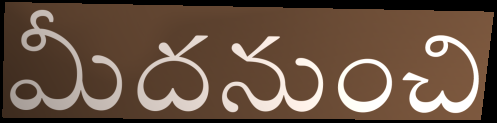
మీదనుంచి